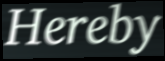
Hereby